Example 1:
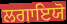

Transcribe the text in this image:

ਲਗਾਇਯੋ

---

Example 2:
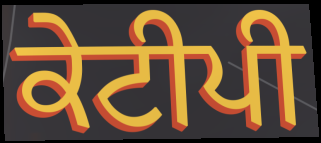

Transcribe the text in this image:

ਕੇਟੀਪੀ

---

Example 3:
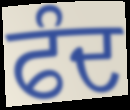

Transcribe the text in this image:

ਫੰਦ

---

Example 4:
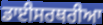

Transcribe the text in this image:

ਡਾਈਸਰਥਰੀਆ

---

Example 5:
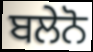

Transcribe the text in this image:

ਬਲੇਨੋ